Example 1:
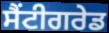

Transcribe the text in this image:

ਸੈਂਟੀਗਰੇਡ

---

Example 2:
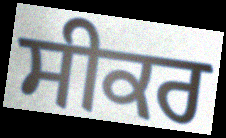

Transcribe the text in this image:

ਸੀਕਰ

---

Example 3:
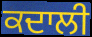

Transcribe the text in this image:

ਕਦਾਲੀ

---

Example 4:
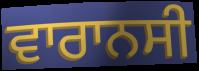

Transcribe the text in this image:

ਵਾਰਾਨਸੀ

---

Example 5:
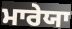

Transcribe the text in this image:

ਮਾਰੇਯਾ